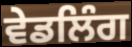
ਵੇਡਲਿੰਗ